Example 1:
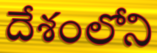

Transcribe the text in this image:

దేశంలోని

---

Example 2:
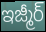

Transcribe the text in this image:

ఇజ్మీర్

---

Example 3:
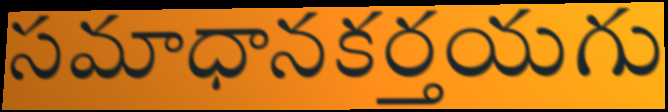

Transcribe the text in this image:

సమాధానకర్తయగు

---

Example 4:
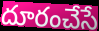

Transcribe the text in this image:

దూరంచేసే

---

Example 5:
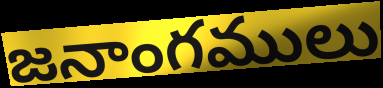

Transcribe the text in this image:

జనాంగములు